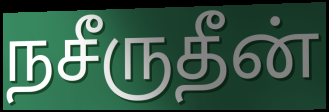
நசீருதீன்